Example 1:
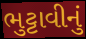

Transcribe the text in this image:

ભુટ્ટાવીનું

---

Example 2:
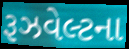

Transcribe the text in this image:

રૂઝવેલ્ટના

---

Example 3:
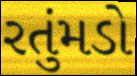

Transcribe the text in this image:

રતુંમડો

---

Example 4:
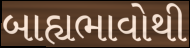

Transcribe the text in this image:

બાહ્યભાવોથી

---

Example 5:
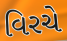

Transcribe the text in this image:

વિરચે